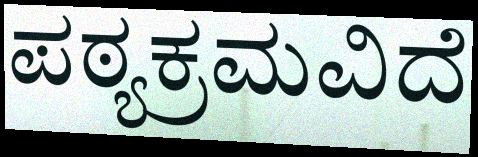
ಪಠ್ಯಕ್ರಮವಿದೆ